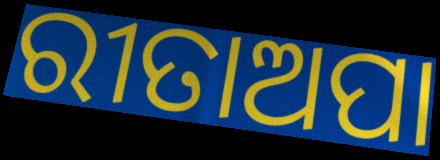
ରୀତାଅପା